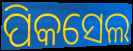
ପିକସେଲ